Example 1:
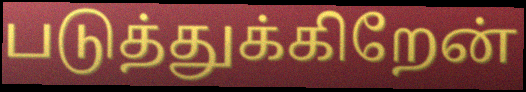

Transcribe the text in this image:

படுத்துக்கிறேன்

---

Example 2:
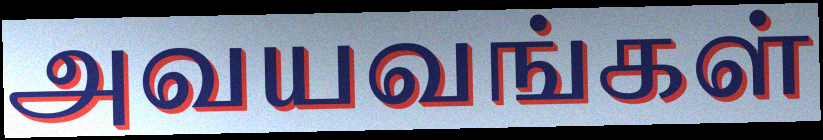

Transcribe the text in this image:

அவயவங்கள்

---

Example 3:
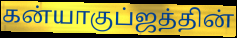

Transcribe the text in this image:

கன்யாகுப்ஜத்தின்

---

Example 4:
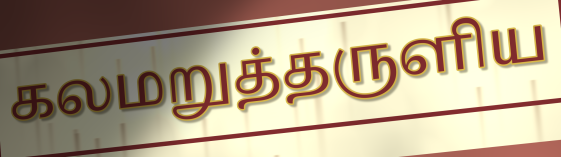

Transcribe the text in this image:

கலமறுத்தருளிய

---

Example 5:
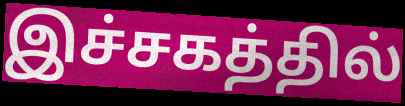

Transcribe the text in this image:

இச்சகத்தில்